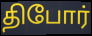
திபோர்